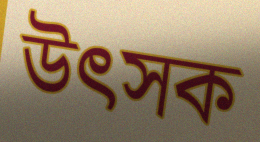
উৎসক